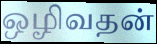
ஒழிவதன்